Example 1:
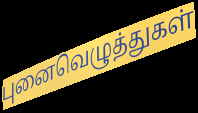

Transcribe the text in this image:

புனைவெழுத்துகள்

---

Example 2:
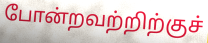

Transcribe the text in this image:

போன்றவற்றிற்குச்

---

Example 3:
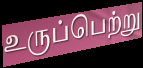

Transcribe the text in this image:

உருப்பெற்று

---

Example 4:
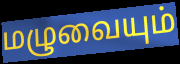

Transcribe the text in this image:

மழுவையும்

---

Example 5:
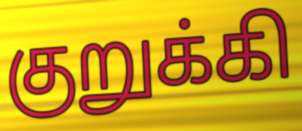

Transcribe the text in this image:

குறுக்கி